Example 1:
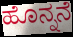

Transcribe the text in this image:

ಹೊನ್ನನೆ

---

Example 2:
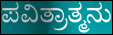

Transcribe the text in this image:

ಪವಿತ್ರಾತ್ಮನು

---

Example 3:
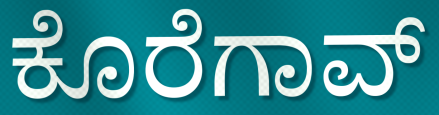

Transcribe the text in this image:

ಕೊರೆಗಾವ್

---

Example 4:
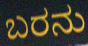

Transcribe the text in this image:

ಬರನು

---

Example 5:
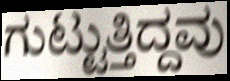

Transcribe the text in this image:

ಗುಟ್ಟುತ್ತಿದ್ದವು